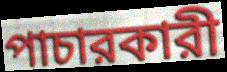
পাচারকারী